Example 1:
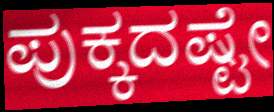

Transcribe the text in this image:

ಪುಕ್ಕದಷ್ಟೇ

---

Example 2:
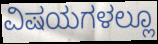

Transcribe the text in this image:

ವಿಷಯಗಳಲ್ಲೂ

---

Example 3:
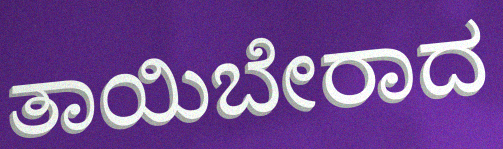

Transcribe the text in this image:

ತಾಯಿಬೇರಾದ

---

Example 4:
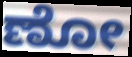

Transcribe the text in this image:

ಣೋ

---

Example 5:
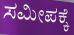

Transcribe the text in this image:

ಸಮೀಪಕ್ಕೆ